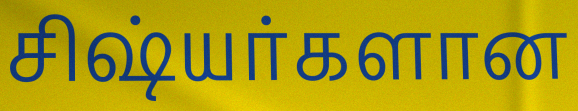
சிஷ்யர்களான